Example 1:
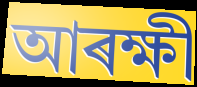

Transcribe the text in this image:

আৰক্ষী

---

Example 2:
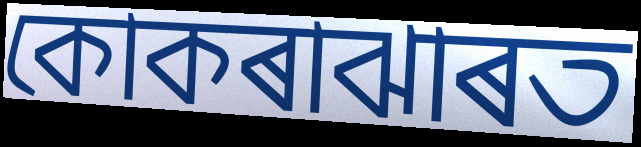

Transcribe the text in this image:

কোকৰাঝাৰত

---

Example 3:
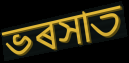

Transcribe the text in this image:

ভৰসাত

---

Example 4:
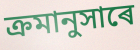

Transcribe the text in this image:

ক্ৰমানুসাৰে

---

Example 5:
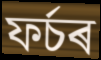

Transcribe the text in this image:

ফৰ্চৰ